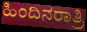
ಹಿಂದಿನರಾತ್ರಿ